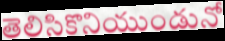
తెలిసికొనియుండునో